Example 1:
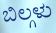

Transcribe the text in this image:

ಬಿಲ್ಗಳು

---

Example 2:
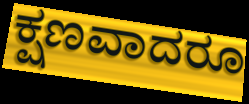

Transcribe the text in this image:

ಕ್ಷಣವಾದರೂ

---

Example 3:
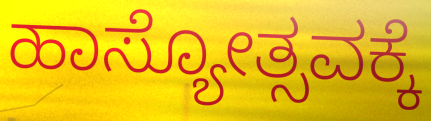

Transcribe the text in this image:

ಹಾಸ್ಯೋತ್ಸವಕ್ಕೆ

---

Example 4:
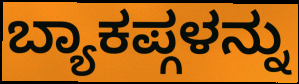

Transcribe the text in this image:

ಬ್ಯಾಕಪ್ಗಳನ್ನು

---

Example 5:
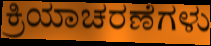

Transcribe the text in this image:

ಕ್ರಿಯಾಚರಣೆಗಳು